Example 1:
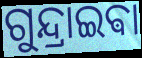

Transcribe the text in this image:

ଗୁନ୍ଦ୍ରାଇଵା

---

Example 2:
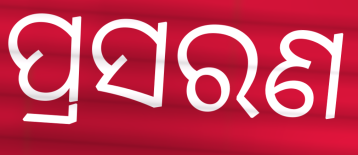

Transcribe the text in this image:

ପ୍ରସରଣ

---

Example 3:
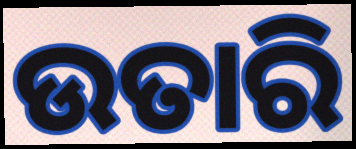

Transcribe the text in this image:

ଉତାରି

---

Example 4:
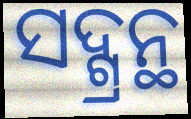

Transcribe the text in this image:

ସଦ୍ଗ୍ରନ୍ଥ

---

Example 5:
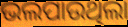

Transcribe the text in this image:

ଭଲପାଉଥିଲା